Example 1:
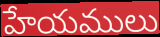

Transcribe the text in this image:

హేయములు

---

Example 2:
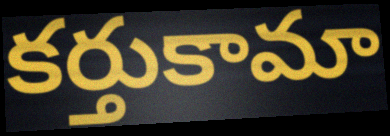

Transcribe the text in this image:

కర్తుకామా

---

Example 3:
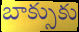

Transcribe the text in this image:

బాక్సుకు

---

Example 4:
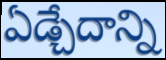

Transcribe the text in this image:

ఏడ్చేదాన్ని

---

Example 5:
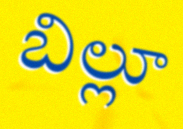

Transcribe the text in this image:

బిల్లూ